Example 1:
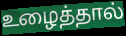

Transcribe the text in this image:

உழைத்தால்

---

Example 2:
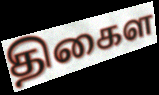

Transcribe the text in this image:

திகைள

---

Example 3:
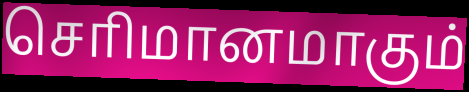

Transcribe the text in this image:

செரிமானமாகும்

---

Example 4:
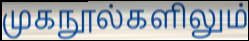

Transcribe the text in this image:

முகநூல்களிலும்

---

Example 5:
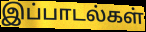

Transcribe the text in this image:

இப்பாடல்கள்